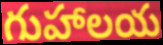
గుహాలయ